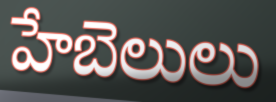
హేబెలులు